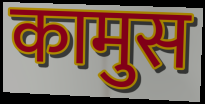
कामुस